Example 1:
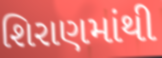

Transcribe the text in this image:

શિરાણમાંથી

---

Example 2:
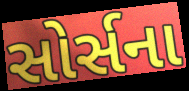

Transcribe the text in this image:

સોર્સના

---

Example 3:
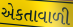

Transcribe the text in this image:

એકતાવાળી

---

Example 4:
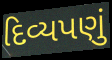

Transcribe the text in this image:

દિવ્યપણું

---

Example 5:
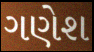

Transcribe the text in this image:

ગણેશ